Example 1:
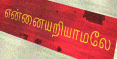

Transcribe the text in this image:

என்னையறியாமலே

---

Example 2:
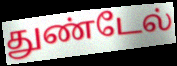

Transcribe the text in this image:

துண்டேல்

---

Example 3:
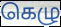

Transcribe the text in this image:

கெழு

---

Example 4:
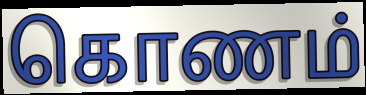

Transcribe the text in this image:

கொணம்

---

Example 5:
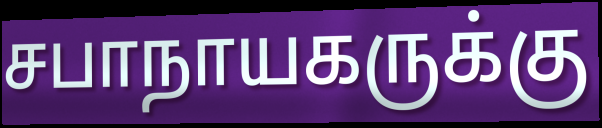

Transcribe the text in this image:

சபாநாயகருக்கு